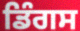
ਡਿੰਗਸ